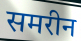
समरीन